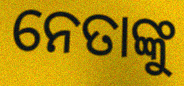
ନେତାଙ୍କୁ